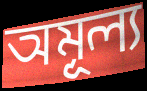
অমূল্য